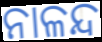
ନାଳନ୍ଦ